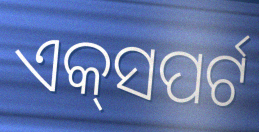
ଏକ୍‌ସପର୍ଟ